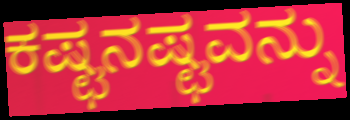
ಕಷ್ಟನಷ್ಟವನ್ನು